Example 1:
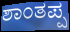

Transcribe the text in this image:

ಶಾಂತಪ್ಪ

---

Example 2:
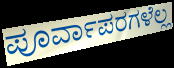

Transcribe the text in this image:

ಪೂರ್ವಾಪರಗಳೆಲ್ಲ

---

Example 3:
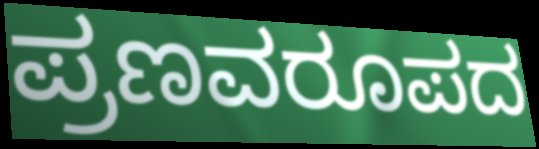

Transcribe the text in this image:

ಪ್ರಣವರೂಪದ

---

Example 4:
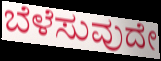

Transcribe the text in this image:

ಬೆಳೆಸುವುದೇ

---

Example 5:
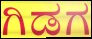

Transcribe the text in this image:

ಗಿಡಗ